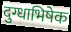
दुग्धाभिषेक